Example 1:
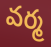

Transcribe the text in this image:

వర్మ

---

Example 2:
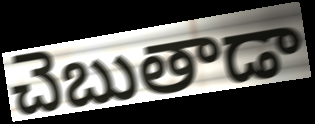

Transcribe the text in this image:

చెబుతాడా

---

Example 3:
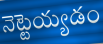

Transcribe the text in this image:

నెట్టెయ్యడం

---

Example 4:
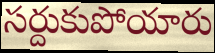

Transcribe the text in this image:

సర్దుకుపోయారు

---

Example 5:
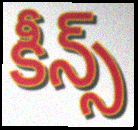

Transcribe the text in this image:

కీన్స్